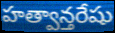
హత్వాన్తరేషు